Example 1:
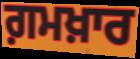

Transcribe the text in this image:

ਗ਼ਮਖ਼ਾਰ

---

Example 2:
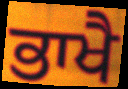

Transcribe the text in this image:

ਭਾਖੈ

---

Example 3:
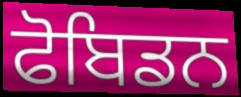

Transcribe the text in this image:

ਫੋਬਿਡਨ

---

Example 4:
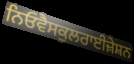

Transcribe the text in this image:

ਨਿਓਵੈਸਕੁਲਰਾਈਜ਼ੇਸ਼ਨ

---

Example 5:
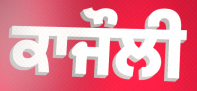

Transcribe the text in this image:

ਕਾਜੌਲੀ